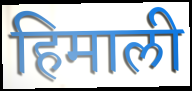
हिमाली